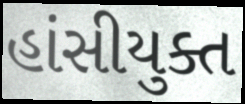
હાંસીયુક્ત